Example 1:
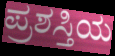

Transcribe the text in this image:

ಪ್ರಶಸ್ತಿಯ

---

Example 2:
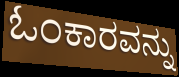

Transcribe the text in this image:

ಓಂಕಾರವನ್ನು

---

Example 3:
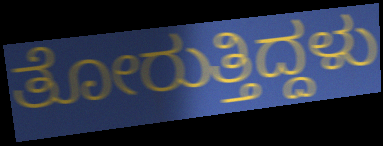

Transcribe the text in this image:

ತೋರುತ್ತಿದ್ದಳು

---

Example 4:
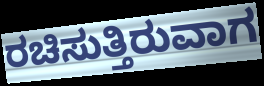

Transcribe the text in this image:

ರಚಿಸುತ್ತಿರುವಾಗ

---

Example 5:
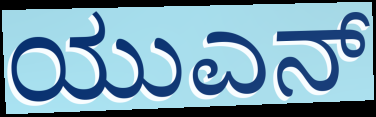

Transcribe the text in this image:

ಯುಎನ್